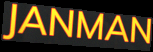
JANMAN